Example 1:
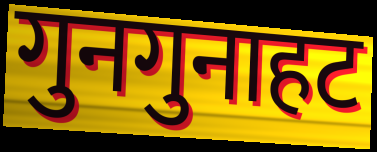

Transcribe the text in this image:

गुनगुनाहट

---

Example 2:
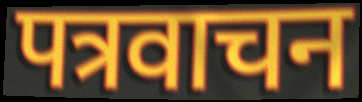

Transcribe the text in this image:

पत्रवाचन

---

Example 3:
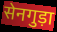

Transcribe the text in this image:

सेनगुड़ा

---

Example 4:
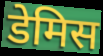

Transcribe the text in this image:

डेमिस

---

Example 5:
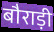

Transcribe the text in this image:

बौराड़ी